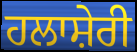
ਹਲਾਸ਼ੇਰੀ